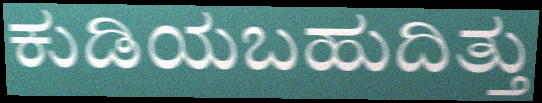
ಕುಡಿಯಬಹುದಿತ್ತು